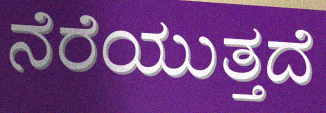
ನೆರೆಯುತ್ತದೆ